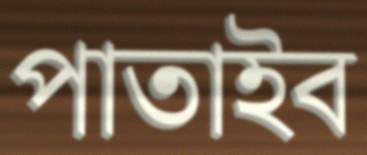
পাতাইব